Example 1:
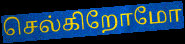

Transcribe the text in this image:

செல்கிறோமோ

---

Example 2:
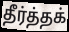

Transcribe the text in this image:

தீர்த்தக்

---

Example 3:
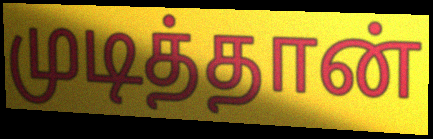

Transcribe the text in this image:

முடித்தான்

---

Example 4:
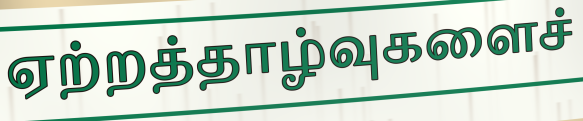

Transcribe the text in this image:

ஏற்றத்தாழ்வுகளைச்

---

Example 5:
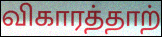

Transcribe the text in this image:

விகாரத்தாற்